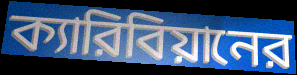
ক্যারিবিয়ানের